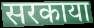
सरकाया